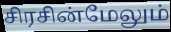
சிரசின்மேலும்